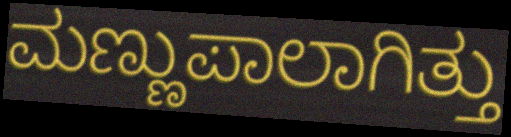
ಮಣ್ಣುಪಾಲಾಗಿತ್ತು